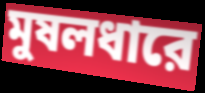
মুষলধারে